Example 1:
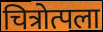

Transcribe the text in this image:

चित्रोत्पला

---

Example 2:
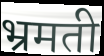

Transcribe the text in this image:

भ्रमती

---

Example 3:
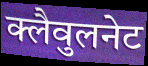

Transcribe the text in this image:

क्लैवुलनेट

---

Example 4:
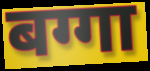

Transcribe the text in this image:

बग्गा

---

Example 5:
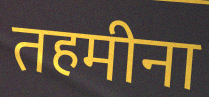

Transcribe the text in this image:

तहमीना